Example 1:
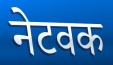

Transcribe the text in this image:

नेटवक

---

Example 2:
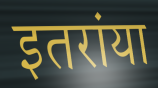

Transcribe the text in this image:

इतरांया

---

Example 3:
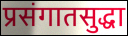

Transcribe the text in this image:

प्रसंगातसुद्धा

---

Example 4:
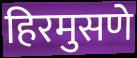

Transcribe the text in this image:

हिरमुसणे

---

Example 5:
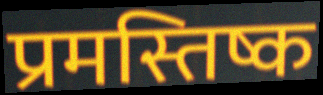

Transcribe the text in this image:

प्रमस्तिष्क